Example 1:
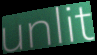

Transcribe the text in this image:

unlit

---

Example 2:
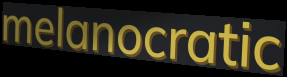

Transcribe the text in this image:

melanocratic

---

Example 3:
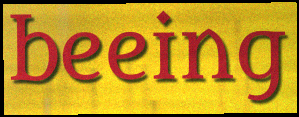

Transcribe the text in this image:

beeing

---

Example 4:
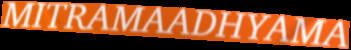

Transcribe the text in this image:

MITRAMAADHYAMA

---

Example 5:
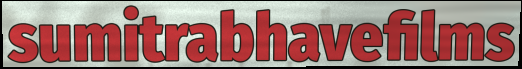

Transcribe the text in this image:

sumitrabhavefilms